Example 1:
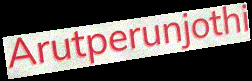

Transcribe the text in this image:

Arutperunjothi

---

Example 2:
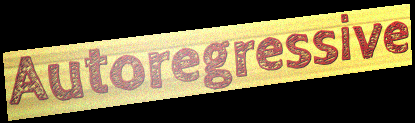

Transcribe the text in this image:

Autoregressive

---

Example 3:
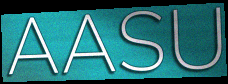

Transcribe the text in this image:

AASU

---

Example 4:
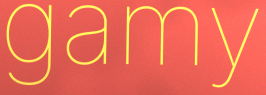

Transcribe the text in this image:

gamy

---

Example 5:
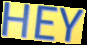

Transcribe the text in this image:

HEY